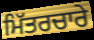
ਮਿੱਤਰਚਾਰੇ